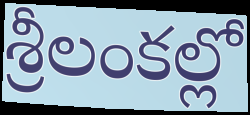
శ్రీలంకల్లో